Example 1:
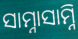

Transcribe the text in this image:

ସାମ୍ନାସାମ୍ନି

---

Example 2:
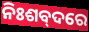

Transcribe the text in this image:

ନିଃଶବ୍‌ଦରେ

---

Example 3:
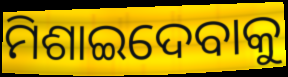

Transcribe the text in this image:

ମିଶାଇଦେବାକୁ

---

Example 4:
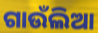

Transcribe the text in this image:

ଗାଉଁଲିଆ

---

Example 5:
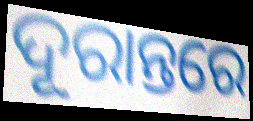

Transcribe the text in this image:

ଦୂରାନ୍ତରେ